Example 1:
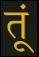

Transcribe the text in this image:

तूं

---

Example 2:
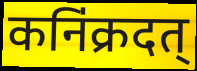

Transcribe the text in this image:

कनि॑क्रदत्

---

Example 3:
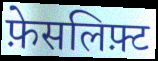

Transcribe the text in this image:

फ़ेसलिफ़्ट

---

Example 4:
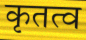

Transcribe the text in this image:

कृतत्व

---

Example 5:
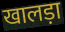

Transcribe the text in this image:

खालड़ा